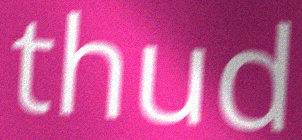
thud